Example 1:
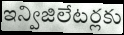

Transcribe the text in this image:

ఇన్విజిలేటర్లకు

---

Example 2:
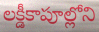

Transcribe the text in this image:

లక్డీకాపూల్లోని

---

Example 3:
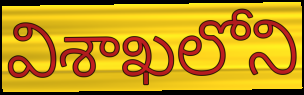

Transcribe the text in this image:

విశాఖలోని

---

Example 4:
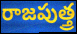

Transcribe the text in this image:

రాజపుత్త్ర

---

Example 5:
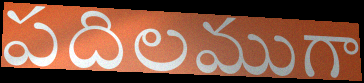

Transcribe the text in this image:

పదిలముగా